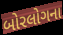
બોરલોગના